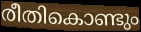
രീതികൊണ്ടും